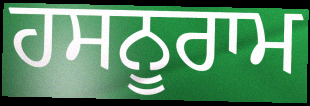
ਹਸਨੂਰਾਮ